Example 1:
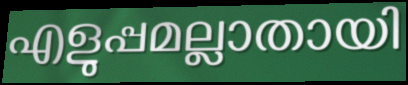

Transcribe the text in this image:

എളുപ്പമല്ലാതായി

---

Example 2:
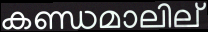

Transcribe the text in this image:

കണ്ഡമാലില്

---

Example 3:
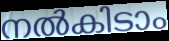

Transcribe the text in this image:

നൽകിടാം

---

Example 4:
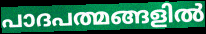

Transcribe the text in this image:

പാദപത്മങ്ങളിൽ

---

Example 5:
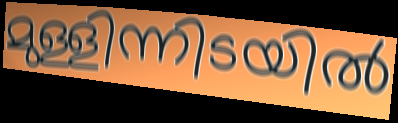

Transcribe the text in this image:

മുള്ളിന്നിടയിൽ